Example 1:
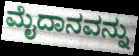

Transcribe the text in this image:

ಮೈದಾನವನ್ನು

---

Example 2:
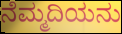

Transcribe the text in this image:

ನೆಮ್ಮದಿಯನು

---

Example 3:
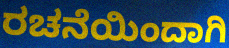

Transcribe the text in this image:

ರಚನೆಯಿಂದಾಗಿ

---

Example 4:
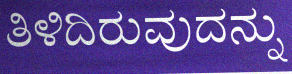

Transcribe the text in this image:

ತಿಳಿದಿರುವುದನ್ನು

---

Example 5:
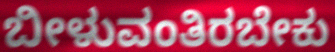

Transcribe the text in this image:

ಬೀಳುವಂತಿರಬೇಕು